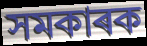
সমকাৰক